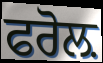
ਫਰੋਲ਼